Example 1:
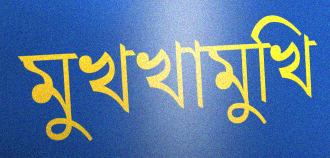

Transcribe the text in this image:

মুখখামুখি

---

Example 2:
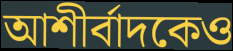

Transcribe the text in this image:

আশীর্বাদকেও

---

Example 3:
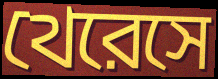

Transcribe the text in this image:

থেরেসে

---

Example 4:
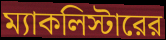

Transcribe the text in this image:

ম্যাকলিস্টারের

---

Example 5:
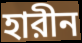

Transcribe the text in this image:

হারীন